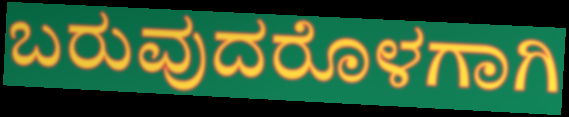
ಬರುವುದರೊಳಗಾಗಿ